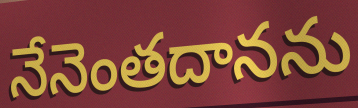
నేనెంతదానను